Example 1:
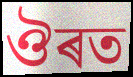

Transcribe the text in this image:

ঔৰত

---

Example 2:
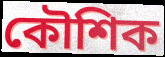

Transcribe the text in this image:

কৌশিক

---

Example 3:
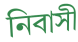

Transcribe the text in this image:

নিবাসী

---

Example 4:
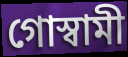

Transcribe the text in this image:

গোস্বামী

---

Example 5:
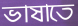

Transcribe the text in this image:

ভাষাতে